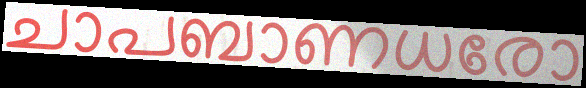
ചാപബാണധരോ